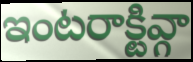
ఇంటరాక్టివ్గా